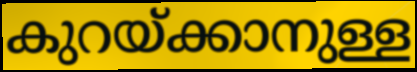
കുറയ്ക്കാനുള്ള